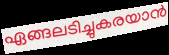
ഏങ്ങലടിച്ചുകരയാൻ